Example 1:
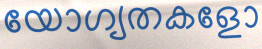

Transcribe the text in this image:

യോഗ്യതകളോ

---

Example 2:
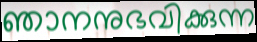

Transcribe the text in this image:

ഞാനനുഭവിക്കുന്ന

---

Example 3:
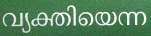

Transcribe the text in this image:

വ്യക്തിയെന്ന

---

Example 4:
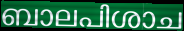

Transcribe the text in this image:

ബാലപിശാച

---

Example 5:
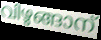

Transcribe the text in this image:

വിഴുങ്ങാന്